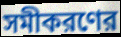
সমীকরণের